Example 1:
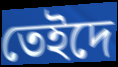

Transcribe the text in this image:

তেইদে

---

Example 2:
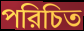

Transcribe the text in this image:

পরিচিত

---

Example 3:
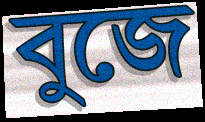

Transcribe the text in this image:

বুজে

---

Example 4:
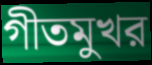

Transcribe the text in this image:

গীতমুখর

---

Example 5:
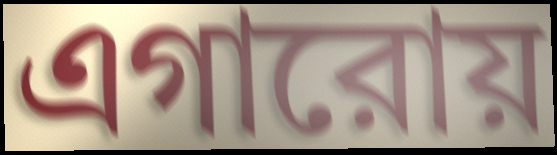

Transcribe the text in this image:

এগারোয়